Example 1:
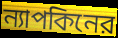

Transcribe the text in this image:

ন্যাপকিনের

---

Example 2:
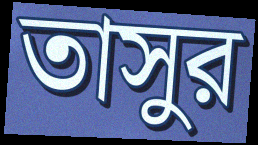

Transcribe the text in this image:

তাসুর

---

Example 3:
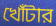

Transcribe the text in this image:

খোঁটার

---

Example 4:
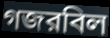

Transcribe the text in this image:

গজরবিল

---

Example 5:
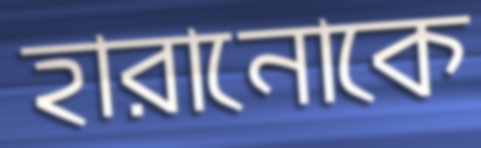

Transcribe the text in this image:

হারানোকে